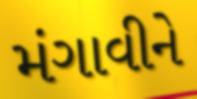
મંગાવીને